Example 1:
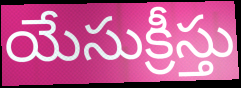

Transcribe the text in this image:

యేసుక్రీస్తు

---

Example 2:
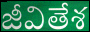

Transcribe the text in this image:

జీవితేశ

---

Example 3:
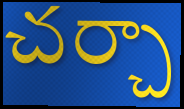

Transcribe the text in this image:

చర్చా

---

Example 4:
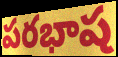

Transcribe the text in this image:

పరభాష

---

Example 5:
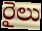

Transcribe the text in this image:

రైలు